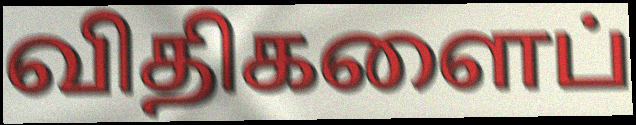
விதிகளைப்